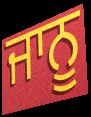
ਜਾਨੂ